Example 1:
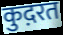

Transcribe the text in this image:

कुद़रत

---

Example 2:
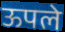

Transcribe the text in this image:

ऊपले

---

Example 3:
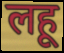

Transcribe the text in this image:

लहू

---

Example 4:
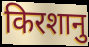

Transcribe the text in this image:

किरशानु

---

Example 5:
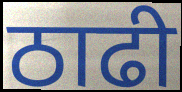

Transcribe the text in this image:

ठाढी